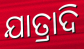
ଯାତ୍ରାଦି